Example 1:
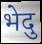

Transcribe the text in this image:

भेदु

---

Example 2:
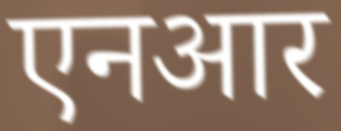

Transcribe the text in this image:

एनआर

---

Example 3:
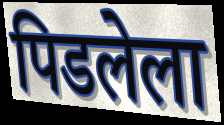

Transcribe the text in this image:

पिडलेला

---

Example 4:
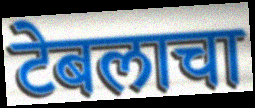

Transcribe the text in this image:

टेबलाचा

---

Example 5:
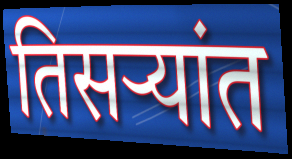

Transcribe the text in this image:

तिसर्‍यांत